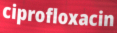
ciprofloxacin